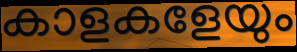
കാളകളേയും